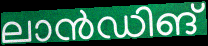
ലാൻഡിങ്